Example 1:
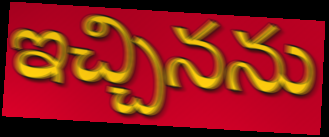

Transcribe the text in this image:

ఇచ్చినను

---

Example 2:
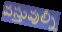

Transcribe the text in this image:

వస్తువుల్నీ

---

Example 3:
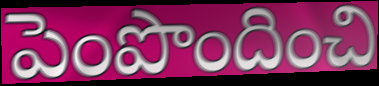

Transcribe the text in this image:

పెంపొందించి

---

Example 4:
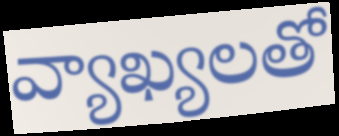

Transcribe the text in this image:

వ్యాఖ్యలతో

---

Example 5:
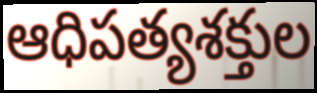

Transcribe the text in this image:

ఆధిపత్యశక్తుల